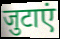
जुटाएं